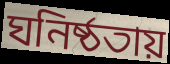
ঘনিষ্ঠতায়